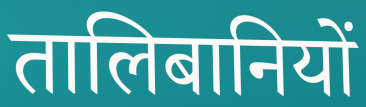
तालिबानियों